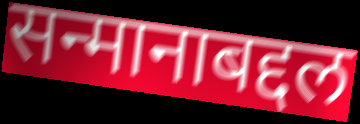
सन्मानाबद्दल